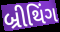
બ્રીથિંગ